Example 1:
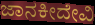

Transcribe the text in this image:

ಜಾನಕೀದೇವಿ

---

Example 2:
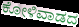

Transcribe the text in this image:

ಕೋಳಿವಾಡದ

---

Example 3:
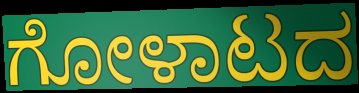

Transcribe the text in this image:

ಗೋಳಾಟದ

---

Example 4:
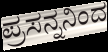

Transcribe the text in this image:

ಪ್ರಸನ್ನನಿಂದ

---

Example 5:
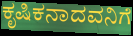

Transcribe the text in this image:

ಕೃಷಿಕನಾದವನಿಗೆ